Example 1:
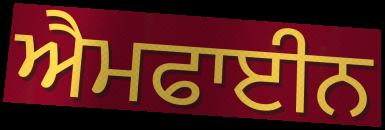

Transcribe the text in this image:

ਐਮਫਾਈਨ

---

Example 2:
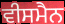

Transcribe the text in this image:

ਵੀਸਮੈਨ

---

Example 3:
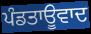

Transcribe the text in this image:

ਪੰਡਤਾਊਵਾਦ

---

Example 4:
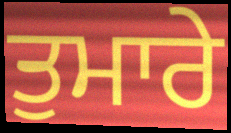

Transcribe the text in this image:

ਤੁਮਾਰੇ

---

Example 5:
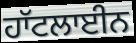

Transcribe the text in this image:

ਹਾੱਟਲਾਈਨ